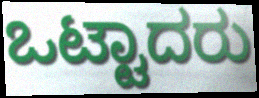
ಒಟ್ಟಾದರು